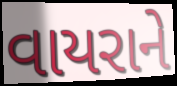
વાયરાને